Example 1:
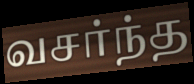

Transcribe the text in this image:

வசர்ந்த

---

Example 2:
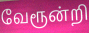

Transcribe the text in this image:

வேரூன்றி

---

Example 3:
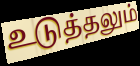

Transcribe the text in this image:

உடுத்தலும்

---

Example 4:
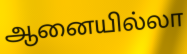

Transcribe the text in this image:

ஆனையில்லா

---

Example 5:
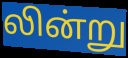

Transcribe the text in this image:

லின்று